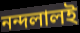
নন্দলালই